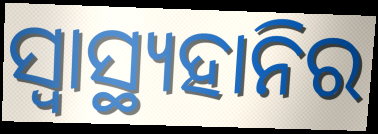
ସ୍ଵାସ୍ଥ୍ୟହାନିର